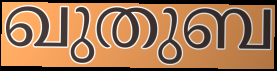
ഖുതുബ